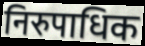
निरुपाधिक